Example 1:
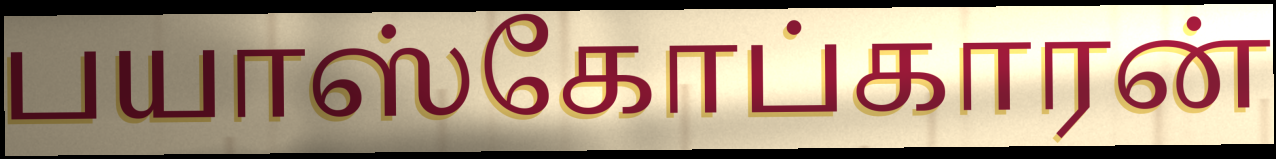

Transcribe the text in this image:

பயாஸ்கோப்காரன்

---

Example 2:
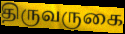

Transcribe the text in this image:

திருவருகை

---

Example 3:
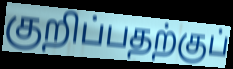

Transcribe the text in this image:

குறிப்பதற்குப்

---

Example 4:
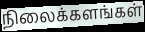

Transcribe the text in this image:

நிலைக்களங்கள்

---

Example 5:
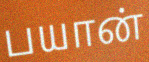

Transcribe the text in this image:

பயான்